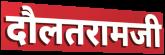
दौलतरामजी